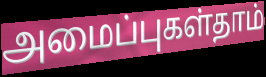
அமைப்புகள்தாம்